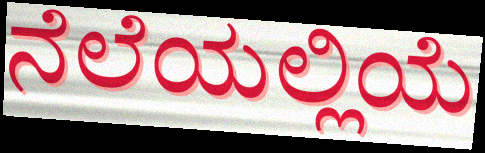
ನೆಲೆಯಲ್ಲಿಯೆ